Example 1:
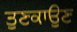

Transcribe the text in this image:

ਤੁਣਕਾਉਣ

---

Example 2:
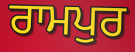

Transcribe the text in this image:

ਰਾਮਪੁਰ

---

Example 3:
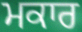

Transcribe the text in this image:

ਮਕਾਰ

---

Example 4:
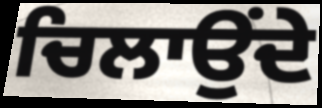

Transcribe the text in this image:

ਚਿਲਾਉਂਦੇ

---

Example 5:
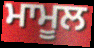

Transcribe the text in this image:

ਮਾਮੂਲ